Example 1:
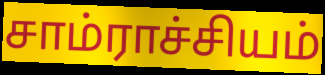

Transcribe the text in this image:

சாம்ராச்சியம்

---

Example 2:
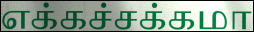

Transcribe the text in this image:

எக்கச்சக்கமா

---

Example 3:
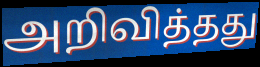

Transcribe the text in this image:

அறிவித்தது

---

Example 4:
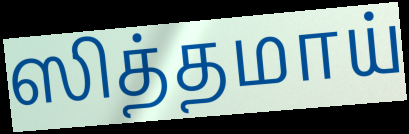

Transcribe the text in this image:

ஸித்தமாய்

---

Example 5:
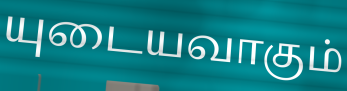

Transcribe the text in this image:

யுடையவாகும்